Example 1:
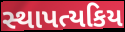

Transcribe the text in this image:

સ્થાપત્યકિય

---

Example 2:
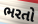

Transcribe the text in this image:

ભરતો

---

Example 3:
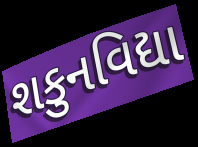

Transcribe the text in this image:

શકુનવિદ્યા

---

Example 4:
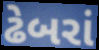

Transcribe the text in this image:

ઢેબરાં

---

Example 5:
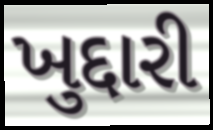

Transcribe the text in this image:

ખુદ્દારી